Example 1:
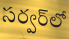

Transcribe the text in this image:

సర్వర్‌లో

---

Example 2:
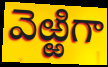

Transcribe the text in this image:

వెఱ్ఱిగా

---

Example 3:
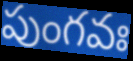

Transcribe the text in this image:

పుంగవః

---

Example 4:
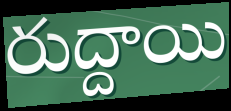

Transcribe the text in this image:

రుద్దాయి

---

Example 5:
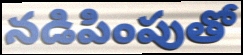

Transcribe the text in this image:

నడిపింపుతో